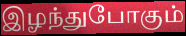
இழந்துபோகும்